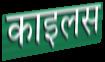
काइलस